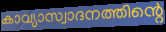
കാവ്യാസ്വാദനത്തിന്റെ